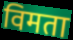
विमता